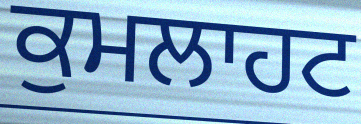
ਕੁਮਲਾਹਟ